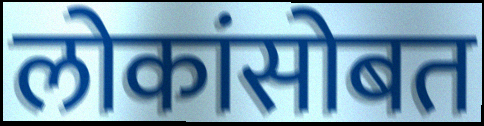
लोकांसोबत